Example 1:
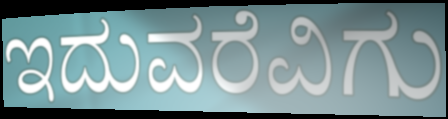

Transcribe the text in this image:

ಇದುವರೆವಿಗು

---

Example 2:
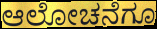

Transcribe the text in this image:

ಆಲೋಚನೆಗೂ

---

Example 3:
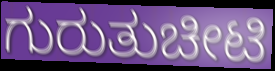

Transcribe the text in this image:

ಗುರುತುಚೀಟಿ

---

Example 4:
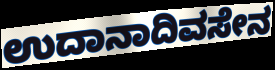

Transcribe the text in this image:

ಉದಾನಾದಿವಸೇನ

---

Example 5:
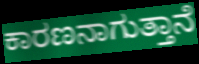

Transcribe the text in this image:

ಕಾರಣನಾಗುತ್ತಾನೆ